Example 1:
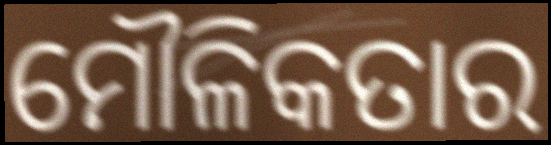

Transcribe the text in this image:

ମୌଳିକତାର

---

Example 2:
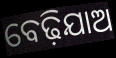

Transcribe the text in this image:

ବେଢ଼ିଯାଅ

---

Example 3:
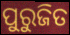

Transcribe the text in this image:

ପୁରୁଜିତ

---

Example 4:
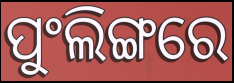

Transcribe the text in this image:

ପୁଂଲିଙ୍ଗରେ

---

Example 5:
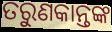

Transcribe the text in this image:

ତରୁଣକାନ୍ତଙ୍କ